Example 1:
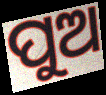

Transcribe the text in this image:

ପୁଅ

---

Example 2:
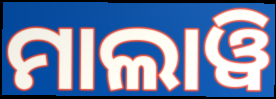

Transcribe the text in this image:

ମାଲାୱି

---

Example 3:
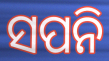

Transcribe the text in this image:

ସପନି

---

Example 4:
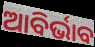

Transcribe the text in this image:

ଆବିର୍ଭାବ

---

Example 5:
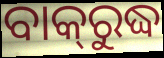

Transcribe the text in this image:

ବାକ୍‌ରୁଦ୍ଧ